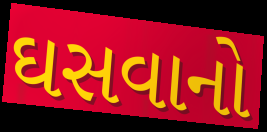
ઘસવાનો